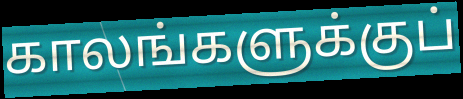
காலங்களுக்குப்